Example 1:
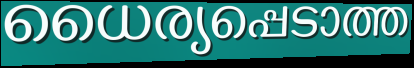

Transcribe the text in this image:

ധൈര്യപ്പെടാത്ത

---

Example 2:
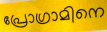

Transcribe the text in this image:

പ്രോഗ്രാമിനെ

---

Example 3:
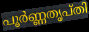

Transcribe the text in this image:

പൂർണ്ണതൃപ്തി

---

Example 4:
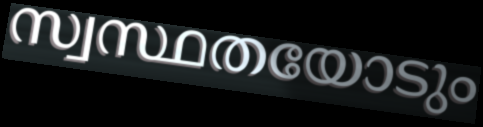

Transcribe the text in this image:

സ്വസ്ഥതയോടും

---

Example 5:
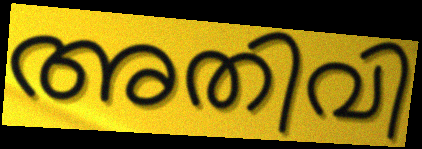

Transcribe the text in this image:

അതിവി